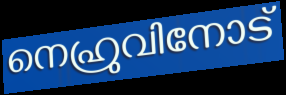
നെഹ്രുവിനോട്